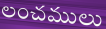
లంచములు